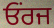
ਓਂਰਜ